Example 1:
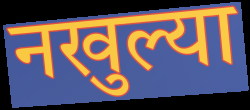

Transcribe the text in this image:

नखुल्या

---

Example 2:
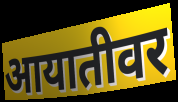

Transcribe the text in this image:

आयातीवर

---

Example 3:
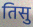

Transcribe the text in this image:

तिसु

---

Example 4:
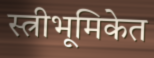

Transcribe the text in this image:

स्त्रीभूमिकेत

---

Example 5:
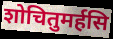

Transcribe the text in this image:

शोचितुमर्हसि